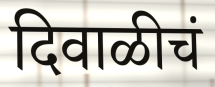
दिवाळीचं